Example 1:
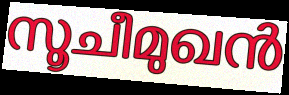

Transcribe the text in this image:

സൂചീമുഖൻ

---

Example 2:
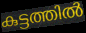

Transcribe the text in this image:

കുട്ടത്തിൽ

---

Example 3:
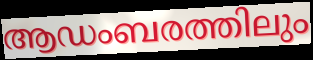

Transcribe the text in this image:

ആഡംബരത്തിലും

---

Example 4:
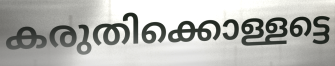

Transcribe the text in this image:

കരുതിക്കൊള്ളട്ടെ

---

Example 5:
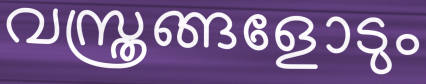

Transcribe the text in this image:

വസ്ത്രങ്ങളോടും